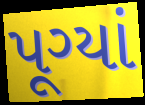
પૂગ્યાં